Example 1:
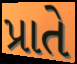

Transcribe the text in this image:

પ્રાતે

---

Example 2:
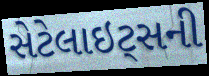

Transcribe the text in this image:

સેટેલાઇટ્સની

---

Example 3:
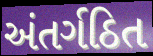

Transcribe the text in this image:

અંતર્ગઠિત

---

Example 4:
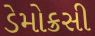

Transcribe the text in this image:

ડેમોક્રસી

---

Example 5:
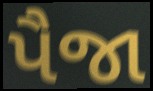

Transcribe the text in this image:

પૈજા